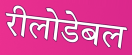
रीलोडेबल